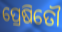
ପ୍ରେଷିତୌ